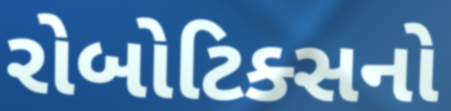
રોબોટિક્સનો